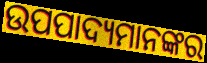
ଉପପାଦ୍ୟମାନଙ୍କର